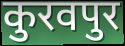
कुरवपुर